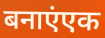
बनाएंएक